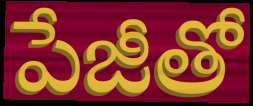
పేజీతో